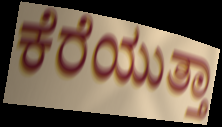
ಕೆರೆಯುತ್ತಾ